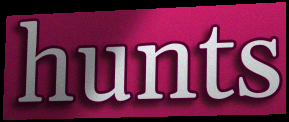
hunts